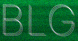
BLG